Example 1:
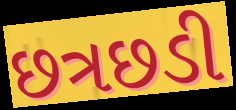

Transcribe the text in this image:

છત્રછડી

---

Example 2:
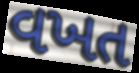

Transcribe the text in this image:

વખત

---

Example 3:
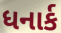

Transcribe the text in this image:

ધનાર્ક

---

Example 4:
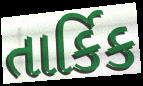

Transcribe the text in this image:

તાર્કિક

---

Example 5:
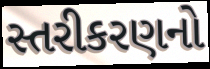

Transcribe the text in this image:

સ્તરીકરણનો